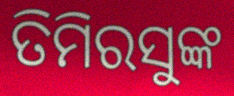
ତିମିରସୁଙ୍କ